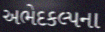
અભેદકલ્પના